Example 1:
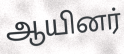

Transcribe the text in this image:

ஆயினர்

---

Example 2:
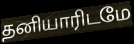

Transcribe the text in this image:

தனியாரிடமே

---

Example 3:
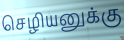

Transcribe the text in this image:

செழியனுக்கு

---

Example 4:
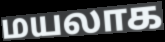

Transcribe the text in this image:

மயலாக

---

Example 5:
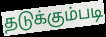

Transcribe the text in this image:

தடுக்கும்படி